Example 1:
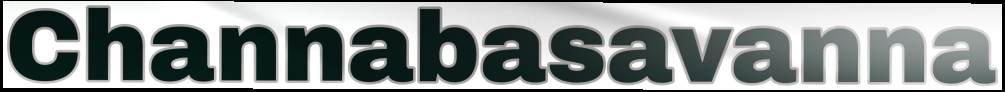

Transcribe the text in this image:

Channabasavanna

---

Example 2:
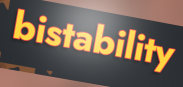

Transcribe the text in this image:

bistability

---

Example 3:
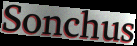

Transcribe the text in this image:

Sonchus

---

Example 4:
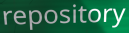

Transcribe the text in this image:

repository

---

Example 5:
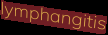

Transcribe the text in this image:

lymphangitis